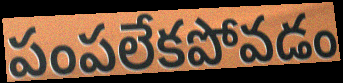
పంపలేకపోవడం